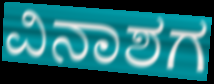
ವಿನಾಶಗ